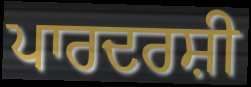
ਪਾਰਦਰਸ਼ੀ